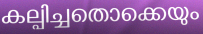
കല്പിച്ചതൊക്കെയും